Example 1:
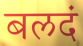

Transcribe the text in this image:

बलदं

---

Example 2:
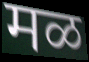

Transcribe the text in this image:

मळ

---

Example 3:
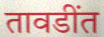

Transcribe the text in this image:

तावडींत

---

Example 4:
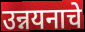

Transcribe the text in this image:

उन्नयनाचे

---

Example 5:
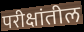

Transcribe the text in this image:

परीक्षांतील